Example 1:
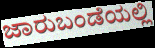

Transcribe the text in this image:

ಜಾರುಬಂಡೆಯಲ್ಲಿ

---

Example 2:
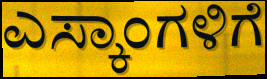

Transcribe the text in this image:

ಎಸ್ಕಾಂಗಳಿಗೆ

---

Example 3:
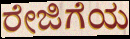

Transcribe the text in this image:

ರೇಜಿಗೆಯ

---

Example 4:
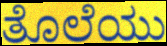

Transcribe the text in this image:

ತೊಲೆಯು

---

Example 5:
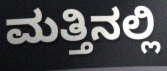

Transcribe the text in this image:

ಮತ್ತಿನಲ್ಲಿ